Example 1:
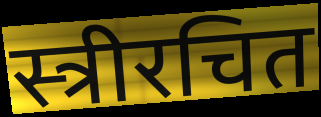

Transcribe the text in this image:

स्त्रीरचित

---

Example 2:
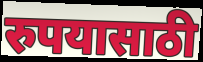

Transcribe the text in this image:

रुपयासाठी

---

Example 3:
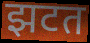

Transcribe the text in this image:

झटत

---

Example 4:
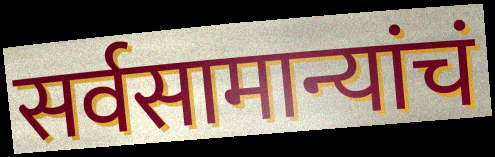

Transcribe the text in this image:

सर्वसामान्यांचं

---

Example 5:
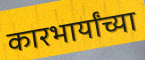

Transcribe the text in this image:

कारभार्यांच्या